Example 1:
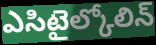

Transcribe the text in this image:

ఎసిటైల్కోలిన్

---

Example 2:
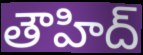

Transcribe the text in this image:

తౌహిద్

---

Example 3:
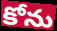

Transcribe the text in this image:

కోను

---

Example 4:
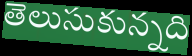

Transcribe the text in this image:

తెలుసుకున్నది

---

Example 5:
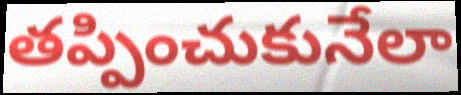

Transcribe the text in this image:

తప్పించుకునేలా